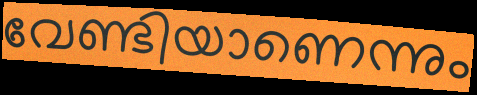
വേണ്ടിയാണെന്നും